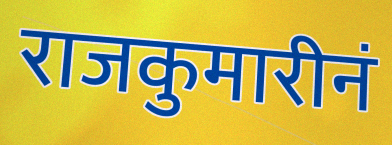
राजकुमारीनं